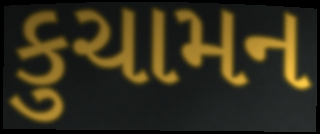
કુચામન